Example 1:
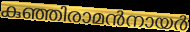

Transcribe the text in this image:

കുഞ്ഞിരാമൻനായർ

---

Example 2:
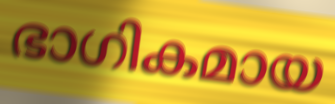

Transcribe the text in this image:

ഭാഗികമായ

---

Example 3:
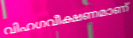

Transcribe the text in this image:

വിഹഗവീക്ഷണമാണ്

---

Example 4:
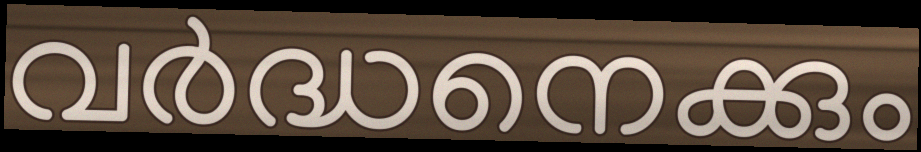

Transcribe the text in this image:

വർദ്ധനെക്കും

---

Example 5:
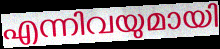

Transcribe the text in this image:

എന്നിവയുമായി